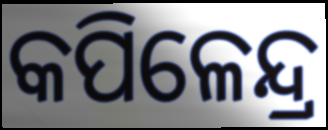
କପିଳେନ୍ଦ୍ର